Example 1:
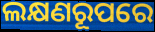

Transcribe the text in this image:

ଲକ୍ଷଣରୂପରେ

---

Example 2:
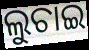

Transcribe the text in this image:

ଲୁଚାଇ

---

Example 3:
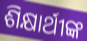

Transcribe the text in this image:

ଶିକ୍ଷାର୍ଥୀଙ୍କ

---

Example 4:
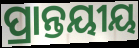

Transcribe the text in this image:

ପ୍ରାନ୍ତୟୀୟ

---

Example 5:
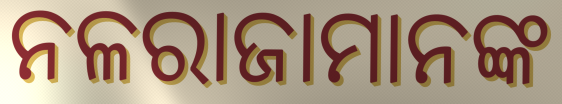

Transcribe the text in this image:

ନଳରାଜାମାନଙ୍କ